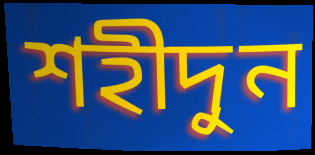
শহীদুন